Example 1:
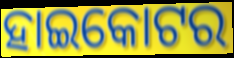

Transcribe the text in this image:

ହାଇକୋଟର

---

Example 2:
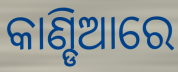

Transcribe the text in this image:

କାଣ୍ଡିଆରେ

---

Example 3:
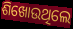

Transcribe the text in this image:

ଶିଖୋଉଥିଲେ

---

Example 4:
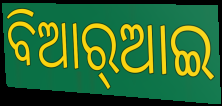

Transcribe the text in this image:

ବିଆର୍‌ଆଇ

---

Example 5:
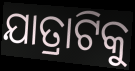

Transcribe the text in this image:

ଯାତ୍ରାଟିକୁ